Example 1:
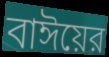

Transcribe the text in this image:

বাঈয়ের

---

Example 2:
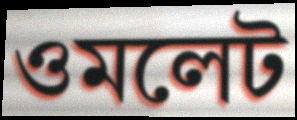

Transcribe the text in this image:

ওমলেট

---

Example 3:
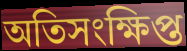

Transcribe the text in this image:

অতিসংক্ষিপ্ত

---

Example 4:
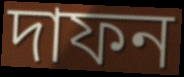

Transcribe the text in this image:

দাফন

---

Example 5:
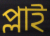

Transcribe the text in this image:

প্লাই